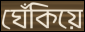
ঘেঁকিয়ে